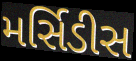
મર્સિડીસ